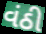
વંઠી